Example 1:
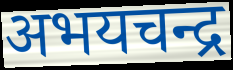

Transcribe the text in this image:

अभयचन्द्र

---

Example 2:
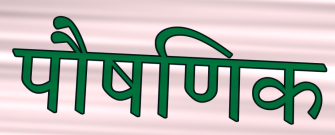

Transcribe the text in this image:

पौषणिक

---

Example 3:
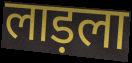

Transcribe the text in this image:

लाड़ला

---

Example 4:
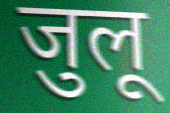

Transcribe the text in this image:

जुलू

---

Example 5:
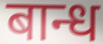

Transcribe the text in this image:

बान्ध